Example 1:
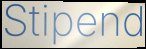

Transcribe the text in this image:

Stipend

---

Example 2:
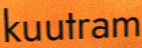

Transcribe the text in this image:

kuutram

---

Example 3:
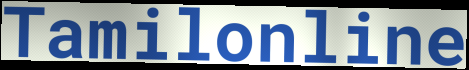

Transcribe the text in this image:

Tamilonline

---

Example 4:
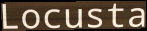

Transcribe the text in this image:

Locusta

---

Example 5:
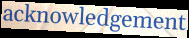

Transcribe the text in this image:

acknowledgement